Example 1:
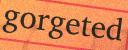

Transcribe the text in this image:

gorgeted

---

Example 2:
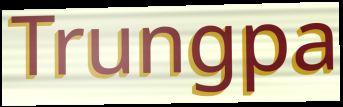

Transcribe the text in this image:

Trungpa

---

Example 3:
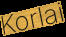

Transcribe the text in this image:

Korlai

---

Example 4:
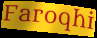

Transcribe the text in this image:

Faroqhi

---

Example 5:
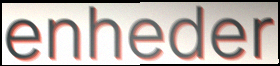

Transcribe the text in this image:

enheder